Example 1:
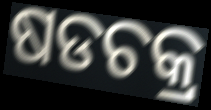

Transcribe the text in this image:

ଷଡଚକ୍ର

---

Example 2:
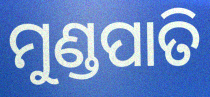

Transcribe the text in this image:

ମୁଣ୍ଡପାତି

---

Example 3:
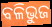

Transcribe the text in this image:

ବଳିଭୁଜ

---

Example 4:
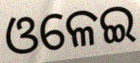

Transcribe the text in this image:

ଓଳେଇ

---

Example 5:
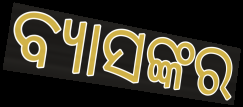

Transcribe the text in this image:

ବ୍ୟାସଙ୍କର